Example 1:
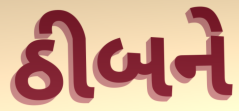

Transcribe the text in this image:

ઠીબને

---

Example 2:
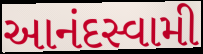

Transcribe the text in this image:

આનંદસ્વામી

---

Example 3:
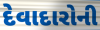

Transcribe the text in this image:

દેવાદારોની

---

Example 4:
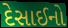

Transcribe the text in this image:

દેસાઈનો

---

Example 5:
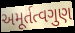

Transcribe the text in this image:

અમૂર્તત્વગુણ